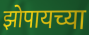
झोपायच्या